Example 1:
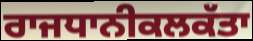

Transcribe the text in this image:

ਰਾਜਧਾਨੀਕਲਕੱਤਾ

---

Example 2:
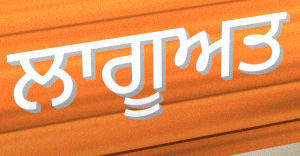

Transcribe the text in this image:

ਲਾਗੂਅਤ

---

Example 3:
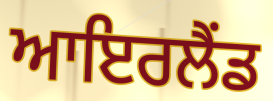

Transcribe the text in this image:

ਆਇਰਲੈਂਡ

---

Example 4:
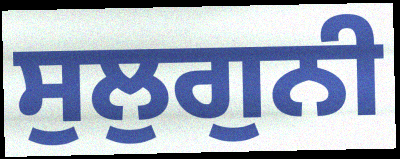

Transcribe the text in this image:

ਸੁਲੁਗੁਨੀ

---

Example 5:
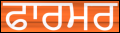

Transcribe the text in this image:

ਫਾਰਮਰ